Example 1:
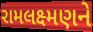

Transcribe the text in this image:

રામલક્ષ્મણને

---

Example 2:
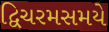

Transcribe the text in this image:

દ્વિચરમસમયે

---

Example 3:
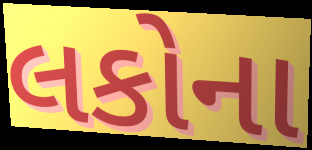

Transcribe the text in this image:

લકોના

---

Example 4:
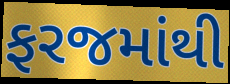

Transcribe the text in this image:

ફરજમાંથી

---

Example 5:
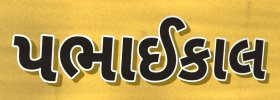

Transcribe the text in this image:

પભાઈકાલ